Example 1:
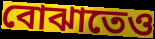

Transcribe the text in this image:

বোঝাতেও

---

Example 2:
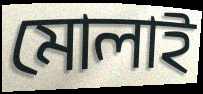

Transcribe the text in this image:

মোলাই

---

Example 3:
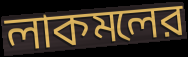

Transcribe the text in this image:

লাকমলের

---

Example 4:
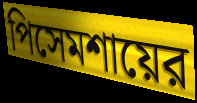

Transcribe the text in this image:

পিসেমশায়ের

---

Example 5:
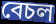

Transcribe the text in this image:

বেচল